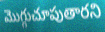
మొగ్గుచూపుతారని